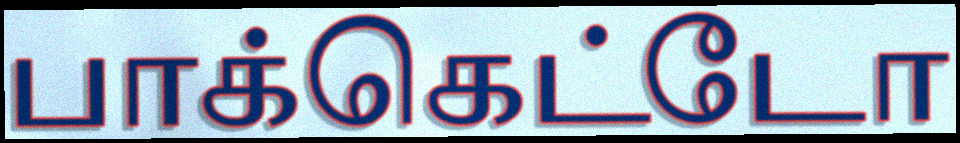
பாக்கெட்டோ